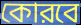
কোরবে